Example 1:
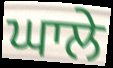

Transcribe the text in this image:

ਘਾਲੇ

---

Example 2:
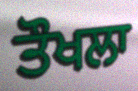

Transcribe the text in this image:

ਤੌਖਲਾ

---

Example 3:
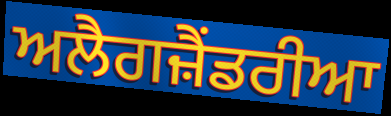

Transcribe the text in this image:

ਅਲੈਗਜ਼ੈਂਡਰੀਆ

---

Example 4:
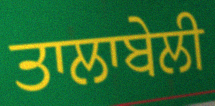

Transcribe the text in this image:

ਤਾਲਾਬੇਲੀ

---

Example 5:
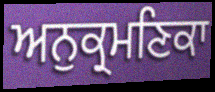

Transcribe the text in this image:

ਅਨੁਕ੍ਰਮਣਿਕਾ